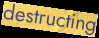
destructing